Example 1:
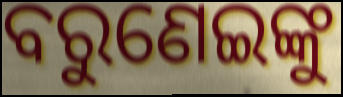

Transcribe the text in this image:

ବରୁଣେଇଙ୍କୁ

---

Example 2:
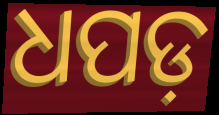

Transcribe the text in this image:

ଧପଡ଼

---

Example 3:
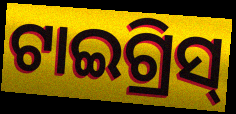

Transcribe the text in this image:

ଟାଇଗ୍ରିସ୍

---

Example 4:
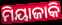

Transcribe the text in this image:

ମିୟାଜାକି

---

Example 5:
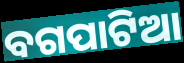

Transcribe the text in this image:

ବଗପାଟିଆ